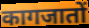
कागजातों